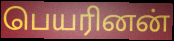
பெயரினன்